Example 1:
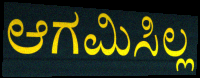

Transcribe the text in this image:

ಆಗಮಿಸಿಲ್ಲ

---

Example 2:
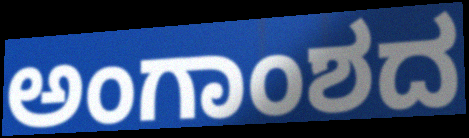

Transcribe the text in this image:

ಅಂಗಾಂಶದ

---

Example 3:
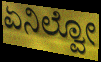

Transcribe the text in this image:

ಏನಿಲ್ವೋ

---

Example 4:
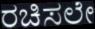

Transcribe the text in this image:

ರಚಿಸಲೇ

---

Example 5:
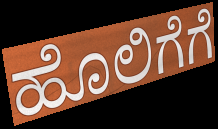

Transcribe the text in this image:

ಹೊಲಿಗೆಗೆ